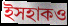
ইসহাকও